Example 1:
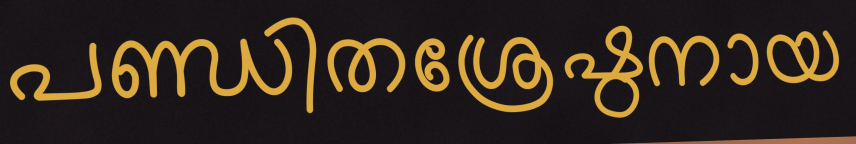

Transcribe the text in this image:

പണ്ഡിതശ്രേഷ്ഠനായ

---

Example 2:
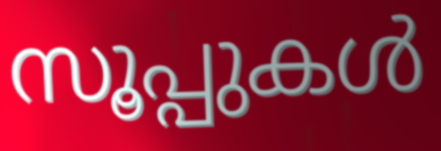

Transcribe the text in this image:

സൂപ്പുകൾ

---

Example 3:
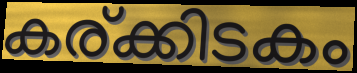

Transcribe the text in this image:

കര്ക്കിടകം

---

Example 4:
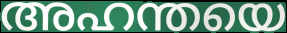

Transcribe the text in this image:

അഹന്തയെ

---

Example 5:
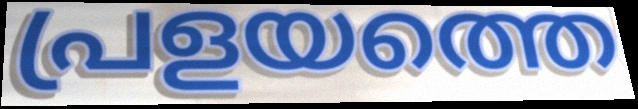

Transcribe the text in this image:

പ്രളയത്തെ